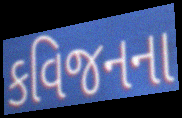
કવિજનના